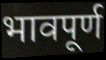
भावपूर्ण